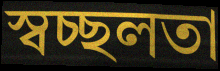
স্বচ্ছলতা